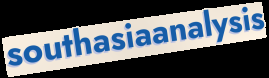
southasiaanalysis